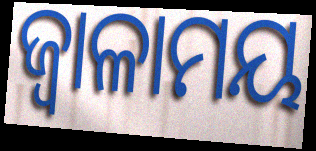
ଜ୍ୱାଳାମୟ